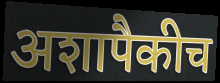
अशापैकीच